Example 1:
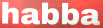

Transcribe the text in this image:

habba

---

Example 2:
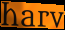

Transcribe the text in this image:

harv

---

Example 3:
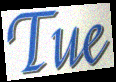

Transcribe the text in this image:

Tue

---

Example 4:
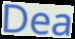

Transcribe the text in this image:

Dea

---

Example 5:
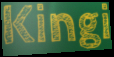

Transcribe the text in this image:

Kingi